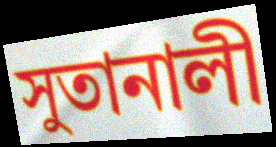
সুতানালী